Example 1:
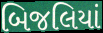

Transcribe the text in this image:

બિજલિયાં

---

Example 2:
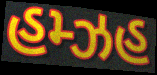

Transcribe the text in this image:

હમ્ઝહ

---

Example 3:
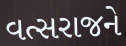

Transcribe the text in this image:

વત્સરાજને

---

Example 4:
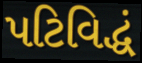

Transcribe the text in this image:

પટિવિદ્ધં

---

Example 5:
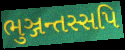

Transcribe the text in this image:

ભુઞ્જન્તસ્સપિ